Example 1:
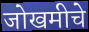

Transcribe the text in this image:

जोखमीचे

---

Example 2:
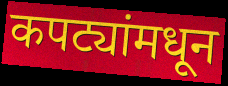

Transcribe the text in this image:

कपट्यांमधून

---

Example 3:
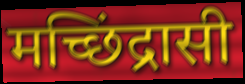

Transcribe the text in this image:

मच्छिंद्रासी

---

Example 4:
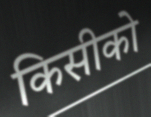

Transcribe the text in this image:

किसीको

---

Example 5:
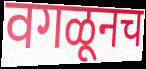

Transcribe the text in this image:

वगळूनच